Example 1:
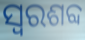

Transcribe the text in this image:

ସ୍ୱରଶବ୍ଦ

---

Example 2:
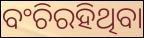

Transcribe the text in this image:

ବଂଚିରହିଥିବା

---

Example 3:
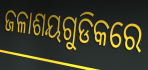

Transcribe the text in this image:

ଜଳାଶୟଗୁଡିକରେ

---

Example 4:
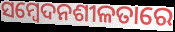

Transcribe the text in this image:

ସମ୍ବେଦନଶୀଳତାରେ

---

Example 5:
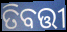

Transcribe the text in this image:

ତିବତ୍ତୀ